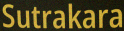
Sutrakara